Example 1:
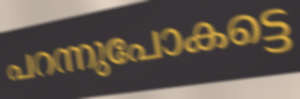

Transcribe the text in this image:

പറന്നുപോകട്ടെ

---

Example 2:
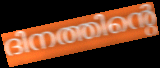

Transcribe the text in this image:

ദിനത്തിന്റെ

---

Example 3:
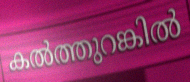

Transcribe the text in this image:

കൽത്തുറങ്കിൽ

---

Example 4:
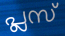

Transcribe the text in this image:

പ്ലസ്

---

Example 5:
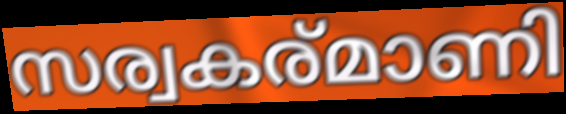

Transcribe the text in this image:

സര്വകര്മാണി